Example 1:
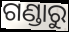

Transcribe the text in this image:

ଗଣ୍ଡାରୁ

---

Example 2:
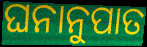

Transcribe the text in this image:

ଘନାନୁପାତ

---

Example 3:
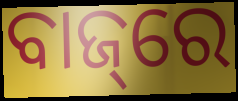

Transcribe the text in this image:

ବାଜ୍‌ରେ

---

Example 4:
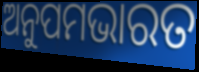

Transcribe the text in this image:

ଅନୁପମଭାରତ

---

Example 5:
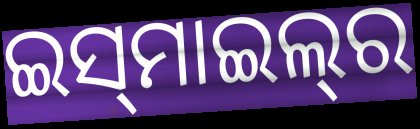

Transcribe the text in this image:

ଇସ୍‌ମାଇଲ୍‌ର